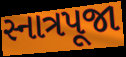
સ્નાત્રપૂજા